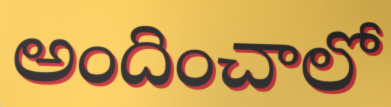
అందించాలో